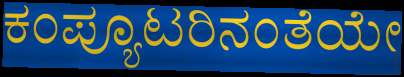
ಕಂಪ್ಯೂಟರಿನಂತೆಯೇ